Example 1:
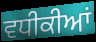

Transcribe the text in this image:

ਵਧੀਕੀਆਂ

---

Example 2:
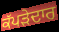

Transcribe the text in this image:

ਕੱਪੜੇਦਾਰ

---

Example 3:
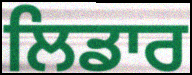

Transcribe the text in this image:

ਲਿਡਾਰ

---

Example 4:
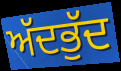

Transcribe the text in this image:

ਅੱਦਭੁੱਦ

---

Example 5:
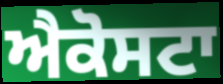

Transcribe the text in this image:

ਐਕੋਸਟਾ